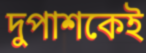
দুপাশকেই